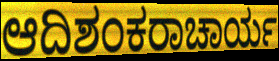
ಆದಿಶಂಕರಾಚಾರ್ಯ